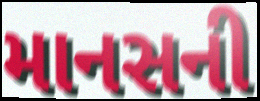
માનસની